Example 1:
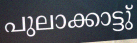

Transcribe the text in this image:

പുലാക്കാട്ടു്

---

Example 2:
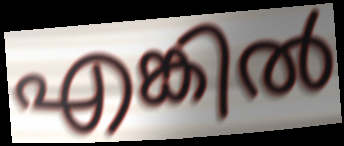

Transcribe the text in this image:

എങ്കിൽ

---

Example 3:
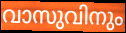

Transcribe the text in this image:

വാസുവിനും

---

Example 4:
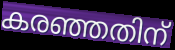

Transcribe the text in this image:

കരഞ്ഞതിന്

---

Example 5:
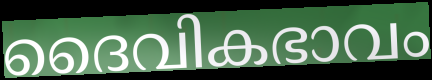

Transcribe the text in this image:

ദൈവികഭാവം